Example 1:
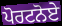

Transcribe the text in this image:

ਪੋਰਟਨੋਏ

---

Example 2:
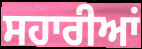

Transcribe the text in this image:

ਸਹਾਰੀਆਂ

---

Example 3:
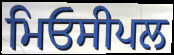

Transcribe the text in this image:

ਮਿਓਸੀਪਲ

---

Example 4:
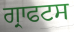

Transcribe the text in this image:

ਗ੍ਰਾਫਟਸ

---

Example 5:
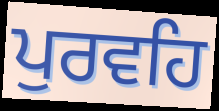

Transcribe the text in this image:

ਪੁਰਵਹਿ